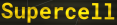
Supercell